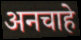
अनचाहे